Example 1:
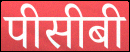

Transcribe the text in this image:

पीसीबी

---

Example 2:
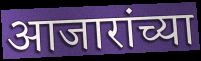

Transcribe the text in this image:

आजारांच्या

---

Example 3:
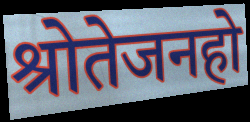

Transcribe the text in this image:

श्रोतेजनहो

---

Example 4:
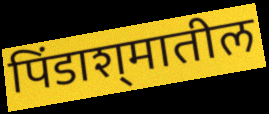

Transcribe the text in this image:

पिंडाश्मातील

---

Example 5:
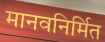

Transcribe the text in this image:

मानवनिर्मित